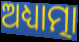
ଅଧ୍ୟାତ୍ମା